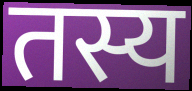
तस्य